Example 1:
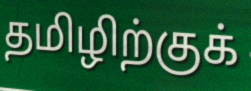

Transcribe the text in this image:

தமிழிற்குக்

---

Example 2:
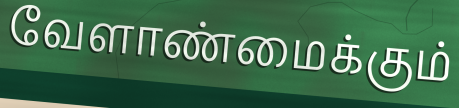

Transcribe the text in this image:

வேளாண்மைக்கும்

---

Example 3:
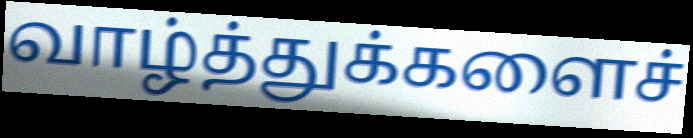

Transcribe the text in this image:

வாழ்த்துக்களைச்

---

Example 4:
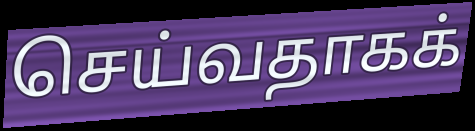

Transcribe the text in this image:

செய்வதாகக்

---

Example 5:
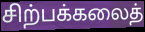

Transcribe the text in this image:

சிற்பக்கலைத்